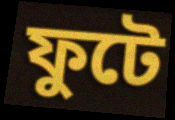
ফুটে